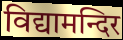
विद्यामन्दिर